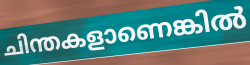
ചിന്തകളാണെങ്കിൽ